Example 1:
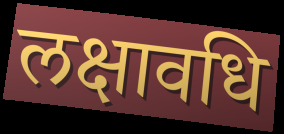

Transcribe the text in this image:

लक्षावधि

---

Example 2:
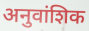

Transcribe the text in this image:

अनुवांशिक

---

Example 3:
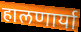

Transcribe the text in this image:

हालणार्या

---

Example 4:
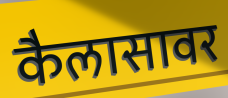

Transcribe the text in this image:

कैलासावर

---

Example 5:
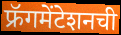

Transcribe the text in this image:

फ्रॅगमेंटेशनची